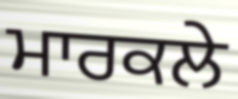
ਮਾਰਕਲੇ